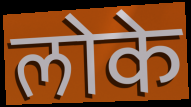
लोके